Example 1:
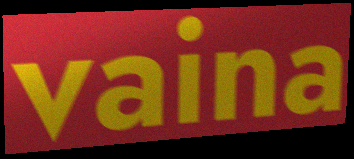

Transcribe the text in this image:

vaina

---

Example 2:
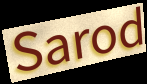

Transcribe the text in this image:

Sarod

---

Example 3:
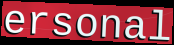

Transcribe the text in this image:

ersonal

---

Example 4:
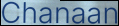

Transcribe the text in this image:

Chanaan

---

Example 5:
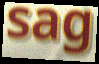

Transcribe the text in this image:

sag